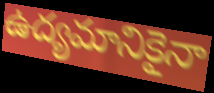
ఉద్యమానికైనా